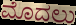
ಮೊದಲು